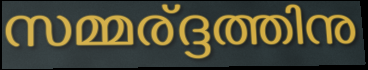
സമ്മര്ദ്ദത്തിനു